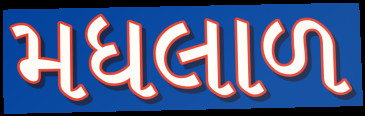
મધલાળ